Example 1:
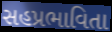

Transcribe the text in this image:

સહપ્રભાવિતા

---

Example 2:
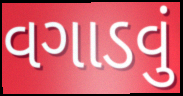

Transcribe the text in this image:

વગાડવું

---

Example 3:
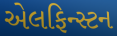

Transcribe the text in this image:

એલફિન્સ્ટન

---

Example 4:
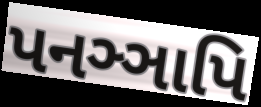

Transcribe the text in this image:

પનઞ્ઞાપિ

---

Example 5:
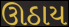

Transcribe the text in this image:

ઊઠાય